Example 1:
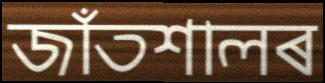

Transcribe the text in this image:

জাঁতশালৰ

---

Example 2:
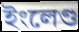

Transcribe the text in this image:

ইংলেণ্ড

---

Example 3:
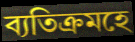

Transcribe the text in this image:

ব্যতিক্ৰমহে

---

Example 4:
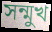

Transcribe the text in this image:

সন্মুখ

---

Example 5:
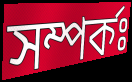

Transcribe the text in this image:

সম্পৰ্কঃ